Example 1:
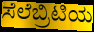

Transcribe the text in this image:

ಸೆಲೆಬ್ರಿಟಿಯ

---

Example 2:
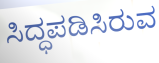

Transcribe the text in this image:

ಸಿದ್ಧಪಡಿಸಿರುವ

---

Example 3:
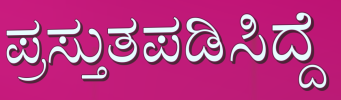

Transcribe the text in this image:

ಪ್ರಸ್ತುತಪಡಿಸಿದ್ದೆ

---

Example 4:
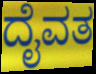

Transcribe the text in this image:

ದೈವತ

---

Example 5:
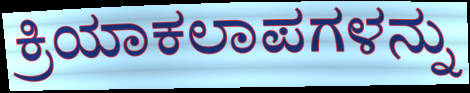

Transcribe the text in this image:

ಕ್ರಿಯಾಕಲಾಪಗಳನ್ನು